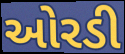
ઓરડી